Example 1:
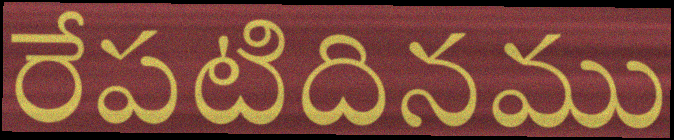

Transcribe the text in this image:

రేపటిదినము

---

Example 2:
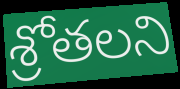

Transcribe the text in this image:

శ్రోతలని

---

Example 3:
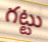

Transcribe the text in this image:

గట్టు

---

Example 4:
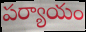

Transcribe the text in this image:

పర్యాయం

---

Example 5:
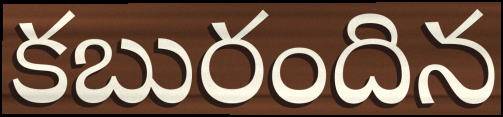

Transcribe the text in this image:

కబురందిన